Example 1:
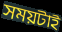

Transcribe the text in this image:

সময়টাই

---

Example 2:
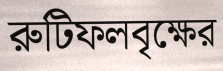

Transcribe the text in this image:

রুটিফলবৃক্ষের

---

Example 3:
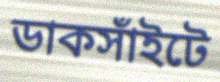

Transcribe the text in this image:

ডাকসাঁইটে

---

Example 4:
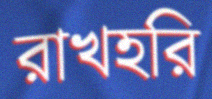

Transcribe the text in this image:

রাখহরি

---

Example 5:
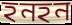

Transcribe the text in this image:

হনহন